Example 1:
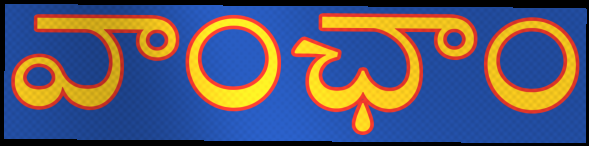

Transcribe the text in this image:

వాంఛాం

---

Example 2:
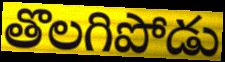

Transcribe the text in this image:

తొలగిపోడు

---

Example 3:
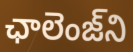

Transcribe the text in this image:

ఛాలెంజ్‌ని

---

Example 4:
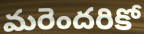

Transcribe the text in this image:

మరెందరికో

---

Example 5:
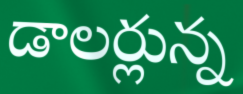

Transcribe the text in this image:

డాలర్లున్న